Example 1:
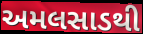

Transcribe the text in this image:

અમલસાડથી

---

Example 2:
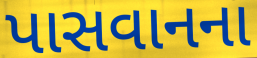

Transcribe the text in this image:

પાસવાનના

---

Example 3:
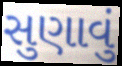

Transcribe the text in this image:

સુણાવું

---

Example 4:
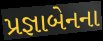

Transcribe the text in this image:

પ્રજ્ઞાબેનના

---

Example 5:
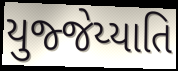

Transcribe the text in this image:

યુજ્જેય્યાતિ